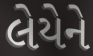
લેયેને